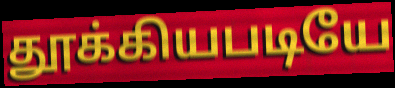
தூக்கியபடியே